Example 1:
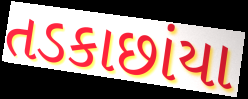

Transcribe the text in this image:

તડકાછાંયા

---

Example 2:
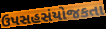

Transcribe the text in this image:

ઉપસહસંયોજકતા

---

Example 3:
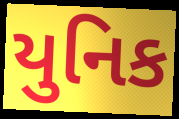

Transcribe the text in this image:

યુનિક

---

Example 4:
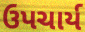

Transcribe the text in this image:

ઉપચાર્ય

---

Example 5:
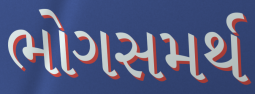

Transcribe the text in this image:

ભોગસમર્થ